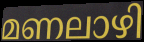
മണലാഴി